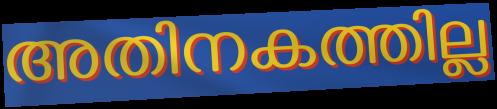
അതിനകത്തില്ല